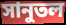
সানুতল